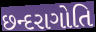
છન્દરાગોતિ